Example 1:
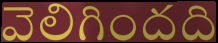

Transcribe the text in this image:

వెలిగిందది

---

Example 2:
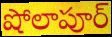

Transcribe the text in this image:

షోలాపూర్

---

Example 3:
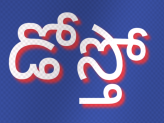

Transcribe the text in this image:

డోస్తో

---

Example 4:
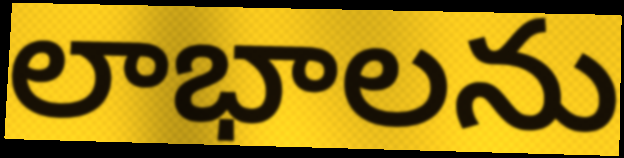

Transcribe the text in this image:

లాభాలను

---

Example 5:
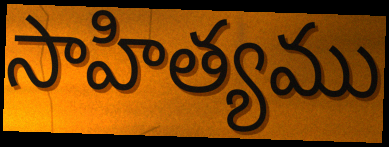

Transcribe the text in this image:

సాహిత్యము